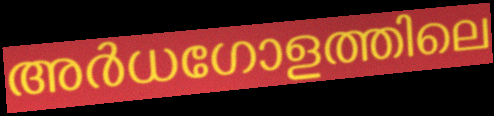
അർധഗോളത്തിലെ